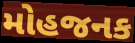
મોહજનક